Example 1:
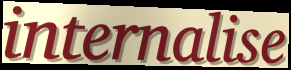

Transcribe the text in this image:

internalise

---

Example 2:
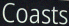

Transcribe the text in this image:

Coasts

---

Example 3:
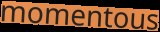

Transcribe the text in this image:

momentous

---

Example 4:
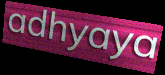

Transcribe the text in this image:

adhyaya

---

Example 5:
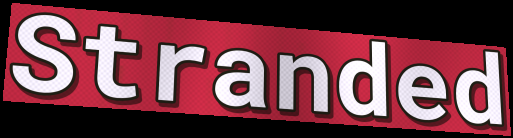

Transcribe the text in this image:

Stranded